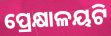
ପ୍ରେକ୍ଷାଳୟଟି